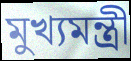
মুখ্যমন্ত্রী